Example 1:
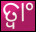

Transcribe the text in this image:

ତ୍ଵାଂ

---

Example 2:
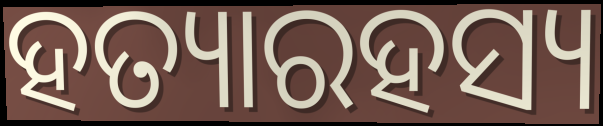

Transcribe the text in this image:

ହତ୍ୟାରହସ୍ୟ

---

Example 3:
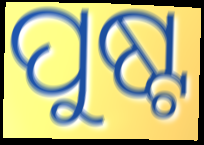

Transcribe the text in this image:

ପୁଷ୍ଟ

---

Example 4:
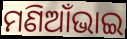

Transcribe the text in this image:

ମଣିଆଁଭାଇ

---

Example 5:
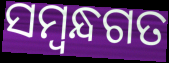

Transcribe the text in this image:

ସମ୍ବନ୍ଧଗତ